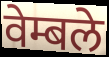
वेम्बले